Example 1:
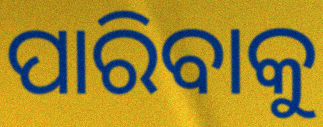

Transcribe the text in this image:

ପାରିବାକୁ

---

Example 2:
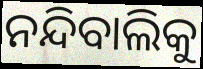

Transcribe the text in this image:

ନନ୍ଦିବାଲିକୁ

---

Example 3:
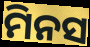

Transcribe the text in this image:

ମିନସ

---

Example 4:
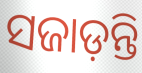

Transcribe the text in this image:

ସଜାଡ଼ନ୍ତି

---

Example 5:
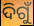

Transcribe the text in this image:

ଦିଗୁଁ